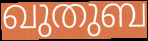
ഖുതുബ